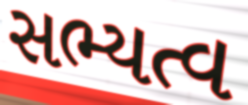
સભ્યત્વ